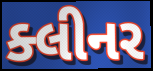
ક્લીનર